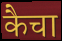
कैचा